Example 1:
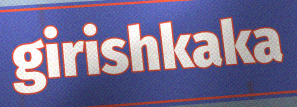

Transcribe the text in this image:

girishkaka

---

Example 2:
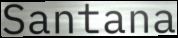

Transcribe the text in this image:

Santana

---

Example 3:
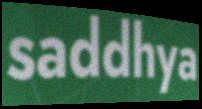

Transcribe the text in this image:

saddhya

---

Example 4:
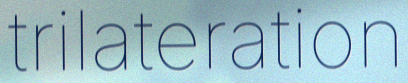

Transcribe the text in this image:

trilateration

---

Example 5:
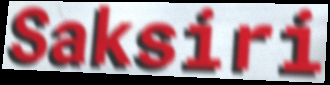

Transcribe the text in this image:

Saksiri